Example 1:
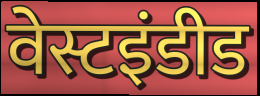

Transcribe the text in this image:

वेस्टइंडीड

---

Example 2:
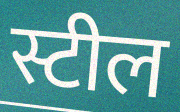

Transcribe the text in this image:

स्टील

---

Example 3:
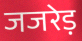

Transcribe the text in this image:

जजरेड़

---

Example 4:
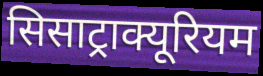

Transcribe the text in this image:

सिसाट्राक्यूरियम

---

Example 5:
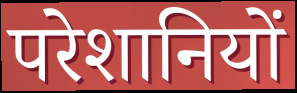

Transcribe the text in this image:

परेशानियों